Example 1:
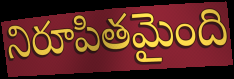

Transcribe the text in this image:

నిరూపితమైంది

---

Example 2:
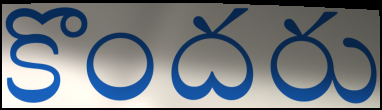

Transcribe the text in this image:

కొందరు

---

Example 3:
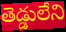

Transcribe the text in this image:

తెడ్డులేని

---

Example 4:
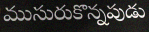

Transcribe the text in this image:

ముసురుకొన్నపుడు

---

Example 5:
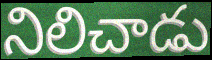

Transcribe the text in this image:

నిలిచాడు